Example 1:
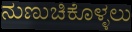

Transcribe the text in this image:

ನುಣುಚಿಕೊಳ್ಳಲು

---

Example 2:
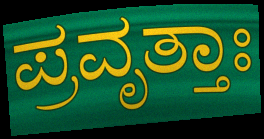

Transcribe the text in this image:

ಪ್ರವೃತ್ತಾಃ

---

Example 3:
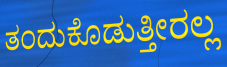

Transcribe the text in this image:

ತಂದುಕೊಡುತ್ತೀರಲ್ಲ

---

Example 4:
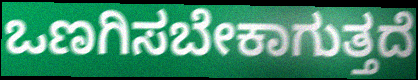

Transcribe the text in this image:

ಒಣಗಿಸಬೇಕಾಗುತ್ತದೆ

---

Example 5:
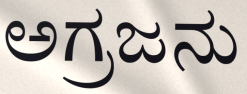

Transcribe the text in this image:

ಅಗ್ರಜನು